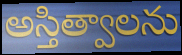
అస్తిత్వాలను